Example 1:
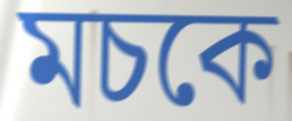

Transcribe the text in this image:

মচকে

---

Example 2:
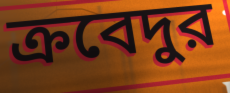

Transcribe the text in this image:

ক্রবেদুর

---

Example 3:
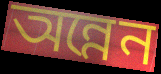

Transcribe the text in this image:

অন্নেন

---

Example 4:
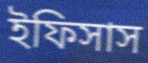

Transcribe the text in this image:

ইফিসাস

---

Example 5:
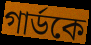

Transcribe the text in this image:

গার্ডকে